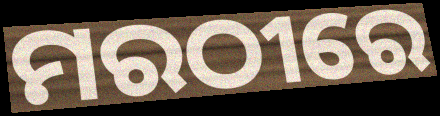
ମରଠୀରେ